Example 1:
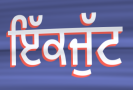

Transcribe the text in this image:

ਇੱਕਜੁੱਟ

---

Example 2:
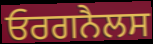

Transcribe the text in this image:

ਓਰਗਨੈਲਸ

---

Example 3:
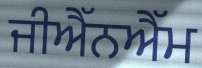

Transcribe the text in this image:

ਜੀਐੱਨਐੱਮ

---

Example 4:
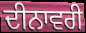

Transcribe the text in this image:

ਦੀਨਾਵਰੀ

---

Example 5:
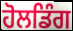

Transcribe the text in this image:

ਹੋਲਡਿੰਗ